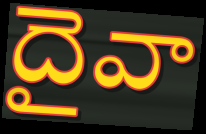
దైవా